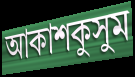
আকাশকুসুম